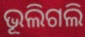
ଭୂଲିଗଲି